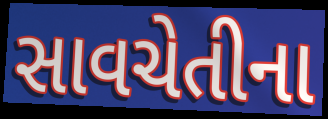
સાવચેતીના